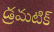
డ్రమటిక్